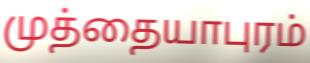
முத்தையாபுரம்